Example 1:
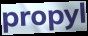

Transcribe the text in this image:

propyl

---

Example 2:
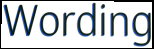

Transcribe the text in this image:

Wording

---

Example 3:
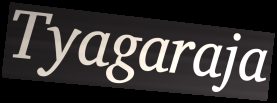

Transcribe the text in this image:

Tyagaraja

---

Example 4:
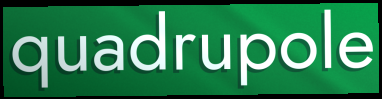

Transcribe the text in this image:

quadrupole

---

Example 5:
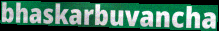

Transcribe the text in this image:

bhaskarbuvancha